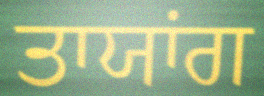
ਤਾਯਾਂਗ